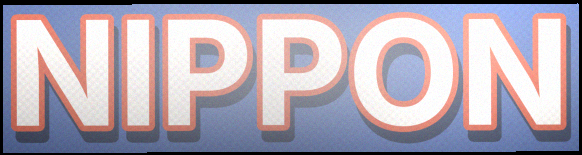
NIPPON